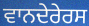
ਵਾਨਦੇਰੇਰਸ